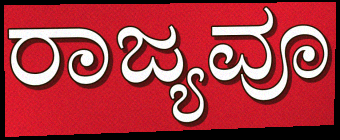
ರಾಜ್ಯವೂ